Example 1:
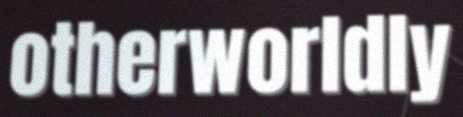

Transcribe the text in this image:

otherworldly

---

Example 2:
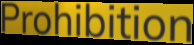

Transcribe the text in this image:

Prohibition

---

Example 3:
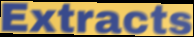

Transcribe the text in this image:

Extracts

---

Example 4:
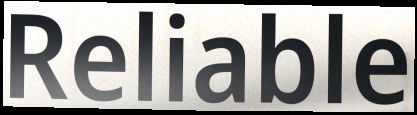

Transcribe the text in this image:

Reliable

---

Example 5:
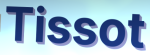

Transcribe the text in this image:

Tissot